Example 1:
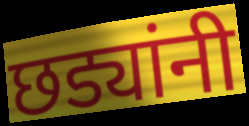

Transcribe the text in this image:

छड्यांनी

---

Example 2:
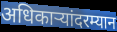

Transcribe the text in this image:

अधिकाऱ्यांदरम्यान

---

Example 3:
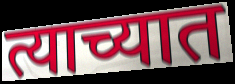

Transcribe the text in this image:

त्याच्यात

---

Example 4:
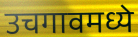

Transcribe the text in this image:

उचगावमध्ये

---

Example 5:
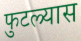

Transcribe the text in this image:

फुटल्यास